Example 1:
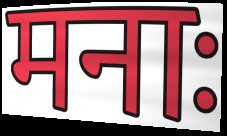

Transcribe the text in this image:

मनाः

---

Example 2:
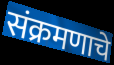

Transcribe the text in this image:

संक्रमणाचे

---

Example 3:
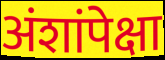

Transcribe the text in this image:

अंशांपेक्षा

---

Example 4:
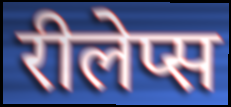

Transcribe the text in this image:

रीलेप्स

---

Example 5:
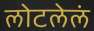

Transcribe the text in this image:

लोटलेलं